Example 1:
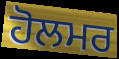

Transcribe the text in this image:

ਹੋਲਮਰ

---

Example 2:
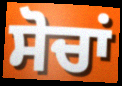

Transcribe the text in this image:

ਸੋਚਾਂ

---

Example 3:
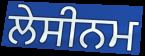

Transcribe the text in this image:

ਲੇਸੀਨਮ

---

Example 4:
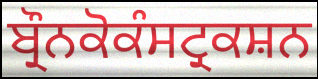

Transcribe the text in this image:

ਬ੍ਰੌਨਕੋਕੰਸਟ੍ਰਕਸ਼ਨ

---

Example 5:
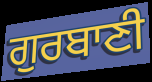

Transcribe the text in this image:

ਗੁਰਬਾਣੀ